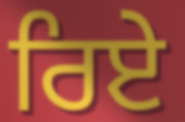
ਰਿਏ